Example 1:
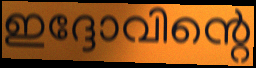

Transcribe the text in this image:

ഇദ്ദോവിന്റെ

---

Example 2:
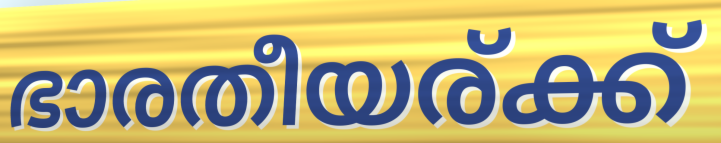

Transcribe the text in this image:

ഭാരതീയര്ക്ക്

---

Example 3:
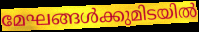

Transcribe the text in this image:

മേഘങ്ങൾക്കുമിടയിൽ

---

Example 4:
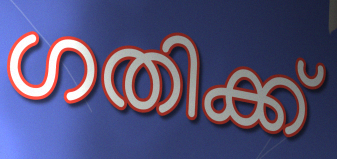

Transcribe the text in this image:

ഗതിക്ക്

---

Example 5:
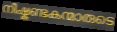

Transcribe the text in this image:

നീഷ്കണ്ടകന്മാരുടെ